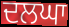
ਦਲਘਾ